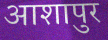
आशापुर